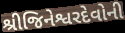
શ્રીજિનેશ્વરદેવોની